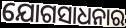
ଯୋଗସାଧନାର